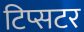
टिप्सटर